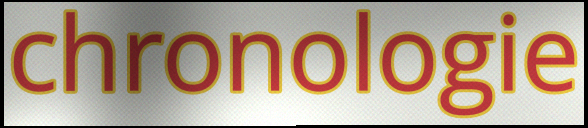
chronologie